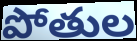
పోతుల